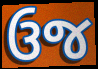
ઉજ